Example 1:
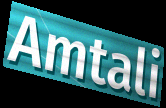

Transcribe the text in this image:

Amtali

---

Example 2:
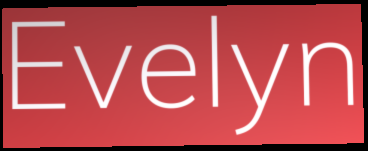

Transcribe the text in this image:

Evelyn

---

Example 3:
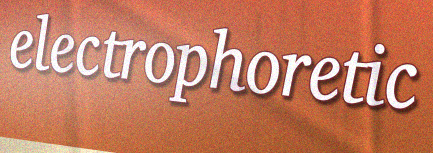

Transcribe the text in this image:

electrophoretic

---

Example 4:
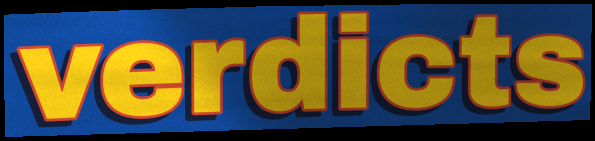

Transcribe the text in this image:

verdicts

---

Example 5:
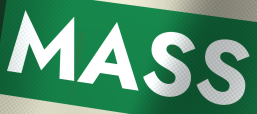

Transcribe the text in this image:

MASS